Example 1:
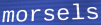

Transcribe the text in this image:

morsels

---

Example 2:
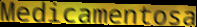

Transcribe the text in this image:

Medicamentosa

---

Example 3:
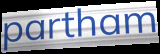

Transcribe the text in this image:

partham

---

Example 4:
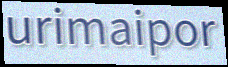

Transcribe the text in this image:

urimaipor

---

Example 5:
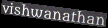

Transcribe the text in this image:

vishwanathan